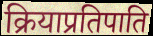
क्रियाप्रतिपाति